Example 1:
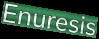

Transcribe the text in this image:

Enuresis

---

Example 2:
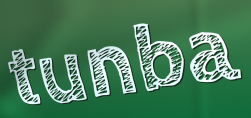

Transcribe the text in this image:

tunba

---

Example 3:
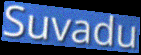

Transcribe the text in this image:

Suvadu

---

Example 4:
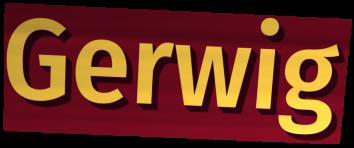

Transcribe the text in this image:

Gerwig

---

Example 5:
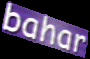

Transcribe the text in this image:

bahar